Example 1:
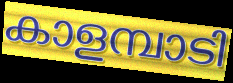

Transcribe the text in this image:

കാളമ്പാടി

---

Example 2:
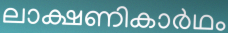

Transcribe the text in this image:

ലാക്ഷണികാർഥം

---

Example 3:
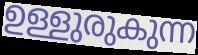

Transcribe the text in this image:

ഉള്ളുരുകുന്ന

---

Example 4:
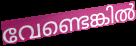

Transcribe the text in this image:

വേണ്ടെങ്കിൽ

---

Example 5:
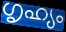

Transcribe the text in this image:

ഗൃഹ്യം